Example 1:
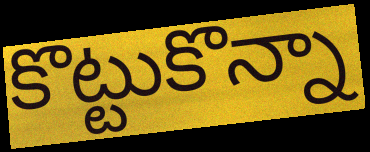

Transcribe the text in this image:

కొట్టుకొన్నా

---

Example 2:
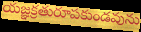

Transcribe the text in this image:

యజ్ఞక్రతురూపకుండవును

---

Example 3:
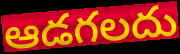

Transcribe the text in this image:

ఆడగలదు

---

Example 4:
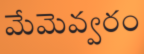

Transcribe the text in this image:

మేమెవ్వరం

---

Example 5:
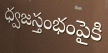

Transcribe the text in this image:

ధ్వజస్తంభంపైకి